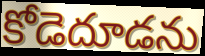
కోడెదూడను